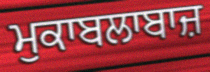
ਮੁਕਾਬਲਾਬਾਜ਼